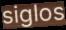
siglos